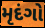
મૃદંગો